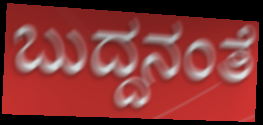
ಬುದ್ದನಂತೆ